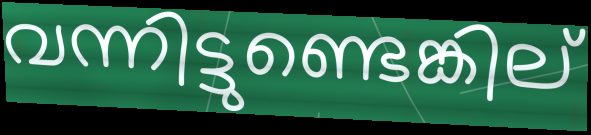
വന്നിട്ടുണ്ടെങ്കില്